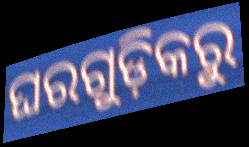
ଘରଗୁଡ଼ିକରୁ